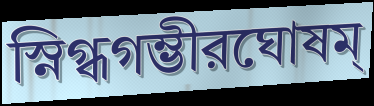
স্নিগ্ধগম্ভীরঘোষম্